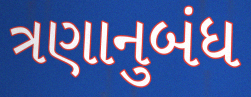
ત્રણાનુબંધ